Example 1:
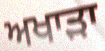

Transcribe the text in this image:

ਅਖਾੜਾ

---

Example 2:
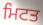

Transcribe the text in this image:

ਮਿਟਤ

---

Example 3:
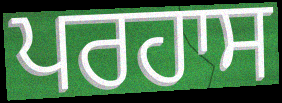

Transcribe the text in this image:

ਪਰਹਾਸ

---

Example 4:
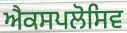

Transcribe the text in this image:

ਐਕਸਪਲੋਸਿਵ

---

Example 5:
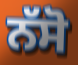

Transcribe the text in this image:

ਨੱਸੋ